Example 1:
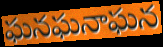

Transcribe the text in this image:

ఘనఘనాఘన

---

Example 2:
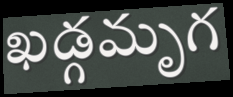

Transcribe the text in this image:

ఖడ్గమృగ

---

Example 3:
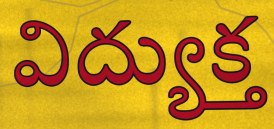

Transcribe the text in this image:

విద్యుక్త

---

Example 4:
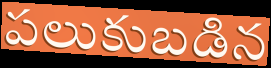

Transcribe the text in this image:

పలుకుబడిన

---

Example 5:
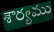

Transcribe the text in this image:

శౌర్యము